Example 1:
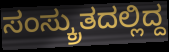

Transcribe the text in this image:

ಸಂಸ್ಕ್ರುತದಲ್ಲಿದ್ದ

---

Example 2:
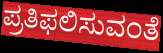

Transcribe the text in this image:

ಪ್ರತಿಫಲಿಸುವಂತೆ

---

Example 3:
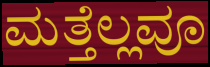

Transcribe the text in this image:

ಮತ್ತೆಲ್ಲವೂ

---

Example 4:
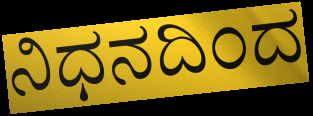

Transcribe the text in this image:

ನಿಧನದಿಂದ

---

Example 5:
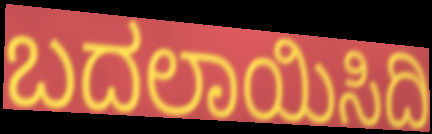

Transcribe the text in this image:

ಬದಲಾಯಿಸಿದಿ